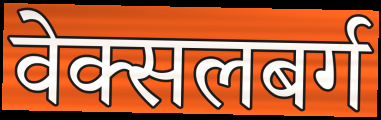
वेक्सलबर्ग